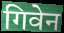
गिवेन